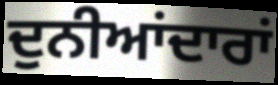
ਦੁਨੀਆਂਦਾਰਾਂ